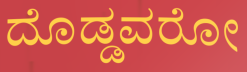
ದೊಡ್ಡವರೋ